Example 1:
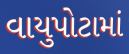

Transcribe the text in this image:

વાયુપોટામાં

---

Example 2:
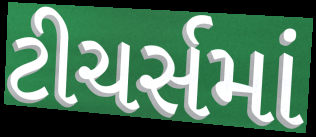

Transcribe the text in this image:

ટીચર્સમાં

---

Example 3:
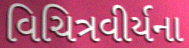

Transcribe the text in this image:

વિચિત્રવીર્યના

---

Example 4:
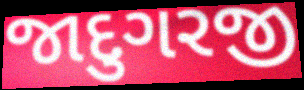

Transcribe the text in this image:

જાદુગરજી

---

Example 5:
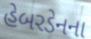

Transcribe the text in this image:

હેબરડેનના